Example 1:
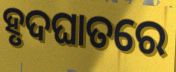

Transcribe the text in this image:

ହୃଦଘାତରେ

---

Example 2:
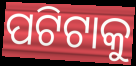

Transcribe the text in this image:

ପଟିଟାକୁ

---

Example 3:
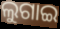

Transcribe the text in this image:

ଲୁଗାଇ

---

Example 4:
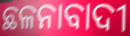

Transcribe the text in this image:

ଛଳନାବାଦୀ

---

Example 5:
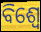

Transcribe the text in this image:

ବିଶ୍ଵେ